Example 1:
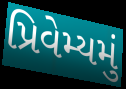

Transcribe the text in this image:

પ્રિવેમ્યમું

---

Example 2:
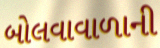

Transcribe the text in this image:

બોલવાવાળાની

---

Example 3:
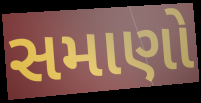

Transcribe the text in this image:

સમાણો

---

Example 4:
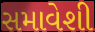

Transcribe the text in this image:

સમાવેશી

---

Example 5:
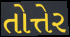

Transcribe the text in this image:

તોત્તેર